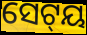
ସେଟ୍‌ୟ